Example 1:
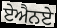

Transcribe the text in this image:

ਏਐਨਏ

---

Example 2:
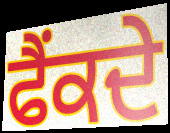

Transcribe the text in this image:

ਫੈਂਕਦੇ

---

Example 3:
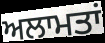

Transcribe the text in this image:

ਅਲਾਮਤਾਂ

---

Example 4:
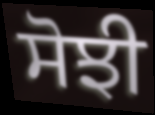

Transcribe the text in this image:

ਸੋਝੀ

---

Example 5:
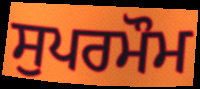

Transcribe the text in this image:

ਸੁਪਰਮੌਮ